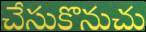
చేసుకొనుచు